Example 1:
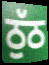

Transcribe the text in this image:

ਠੁੱਠ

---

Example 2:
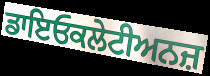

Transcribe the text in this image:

ਡਾਇਓਕਲੇਟੀਅਨਜ਼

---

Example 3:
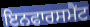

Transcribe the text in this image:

ਇਨਫਾਰਸਮੈਂਟ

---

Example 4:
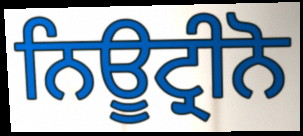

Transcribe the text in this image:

ਨਿਊਟ੍ਰੀਨੋ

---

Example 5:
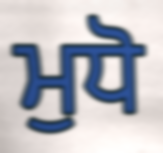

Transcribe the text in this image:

ਮੁਧੋ